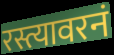
रस्त्यावरनं